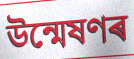
উন্মেষণৰ